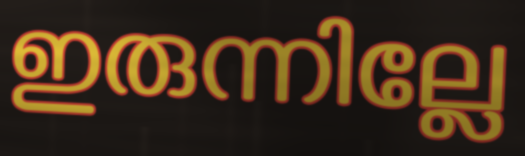
ഇരുന്നില്ലേ